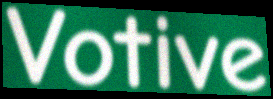
Votive